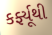
કર્ફ્યૂથી